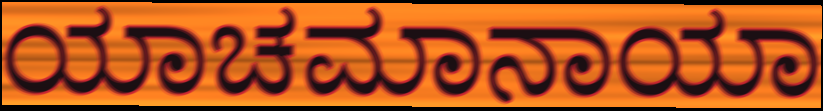
ಯಾಚಮಾನಾಯಾ